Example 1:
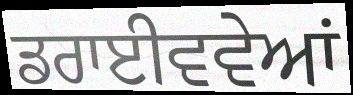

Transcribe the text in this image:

ਡਰਾਈਵਵੇਆਂ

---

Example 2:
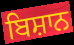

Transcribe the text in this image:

ਬਿਸ਼ਾਨ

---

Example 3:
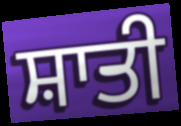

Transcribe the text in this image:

ਸ਼ਾਤੀ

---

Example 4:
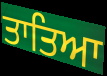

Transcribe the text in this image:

ਤਾਤਿਆ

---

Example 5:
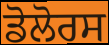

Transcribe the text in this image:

ਡੋਲੋਰਸ